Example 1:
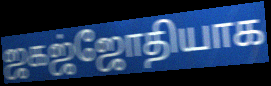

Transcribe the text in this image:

ஜகஜ்ஜோதியாக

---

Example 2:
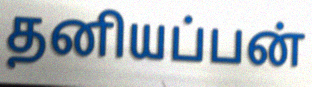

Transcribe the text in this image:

தனியப்பன்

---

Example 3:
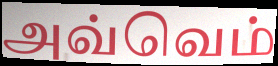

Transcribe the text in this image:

அவ்வெம்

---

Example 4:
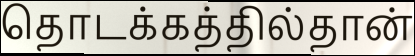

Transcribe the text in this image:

தொடக்கத்தில்தான்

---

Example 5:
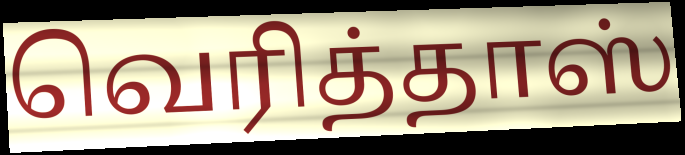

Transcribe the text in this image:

வெரித்தாஸ்